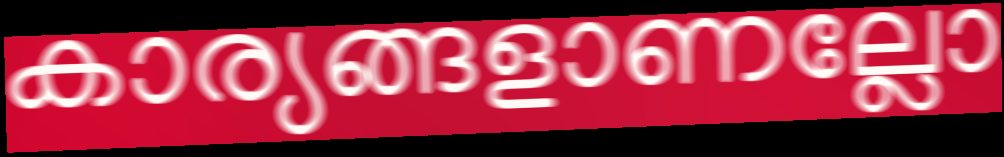
കാര്യങ്ങളാണല്ലോ